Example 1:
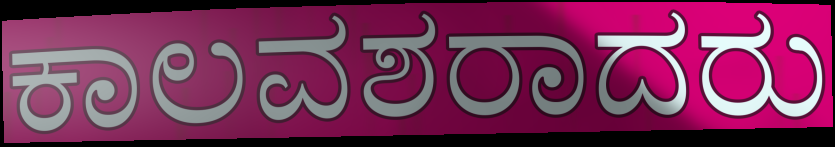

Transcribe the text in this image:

ಕಾಲವಶರಾದರು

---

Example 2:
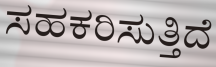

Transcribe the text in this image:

ಸಹಕರಿಸುತ್ತಿದೆ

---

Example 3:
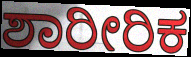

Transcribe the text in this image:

ಶಾರೀರಿಕ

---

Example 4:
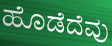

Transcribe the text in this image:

ಹೊಡೆದೆವು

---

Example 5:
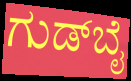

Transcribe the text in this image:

ಗುಡ್‌ಬೈ